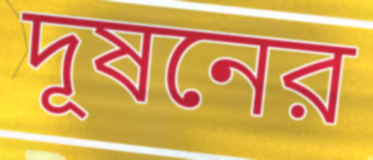
দূষনের